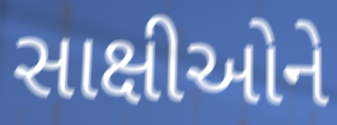
સાક્ષીઓને